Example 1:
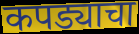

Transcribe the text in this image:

कपड्याचा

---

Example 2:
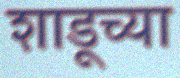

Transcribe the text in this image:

शाडूच्या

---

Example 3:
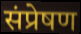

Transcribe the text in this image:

संप्रेषण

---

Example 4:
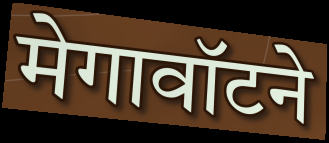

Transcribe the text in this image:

मेगावॉटने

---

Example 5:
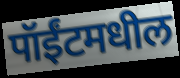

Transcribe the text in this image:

पॉईंटमधील